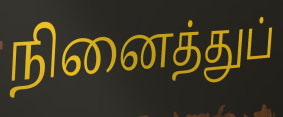
நினைத்துப்